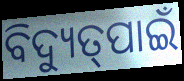
ବିଦ୍ୟୁତ୍‌ପାଇଁ